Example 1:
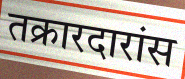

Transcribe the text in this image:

तक्रारदारांस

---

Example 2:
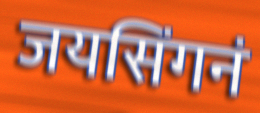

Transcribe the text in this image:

जयसिंगनं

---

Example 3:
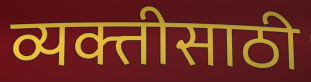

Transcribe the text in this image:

व्यक्तीसाठी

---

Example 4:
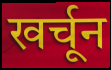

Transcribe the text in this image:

खर्चून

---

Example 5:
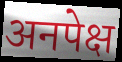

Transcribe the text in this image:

अनपेक्ष